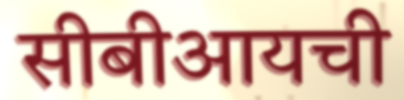
सीबीआयची